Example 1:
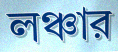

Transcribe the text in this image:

লঞ্চার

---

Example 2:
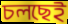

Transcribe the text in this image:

চলছেই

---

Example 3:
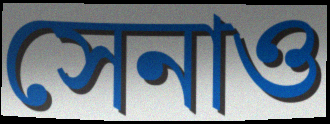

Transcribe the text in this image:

সেনাও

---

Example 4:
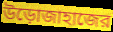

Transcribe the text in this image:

উড়োজাহাজের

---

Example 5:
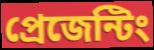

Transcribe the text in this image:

প্রেজেন্টিং